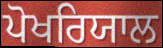
ਪੋਖਰਿਯਾਲ